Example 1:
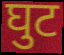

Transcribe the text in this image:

घुट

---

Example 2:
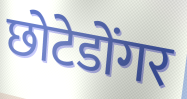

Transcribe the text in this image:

छोटेडोंगर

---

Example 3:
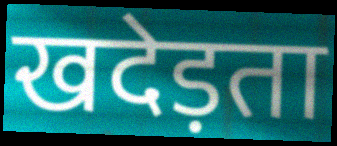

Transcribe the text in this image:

खदेड़ता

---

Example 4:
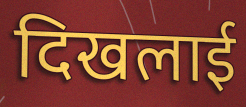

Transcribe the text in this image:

दिखलाई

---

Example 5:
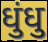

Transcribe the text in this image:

धुंधु